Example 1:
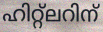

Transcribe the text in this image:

ഹിറ്റ്ലറിന്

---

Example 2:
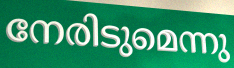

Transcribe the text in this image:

നേരിടുമെന്നു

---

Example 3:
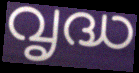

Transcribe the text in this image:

വൃദ്ധ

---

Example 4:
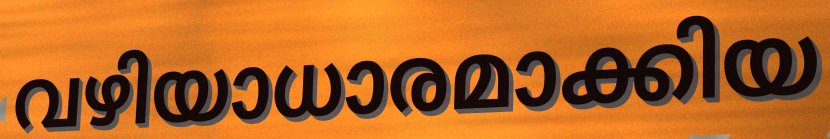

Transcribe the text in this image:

വഴിയാധാരമാക്കിയ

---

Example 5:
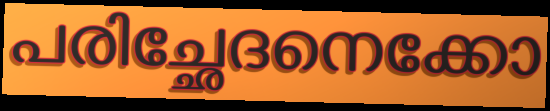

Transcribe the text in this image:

പരിച്ഛേദനെക്കോ